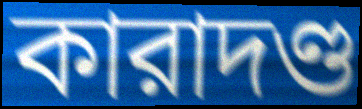
কারাদণ্ড